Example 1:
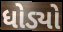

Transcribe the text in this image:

ધોડ્યો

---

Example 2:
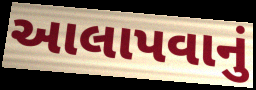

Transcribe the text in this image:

આલાપવાનું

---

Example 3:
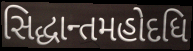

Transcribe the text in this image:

સિદ્ધાન્તમહોદધિ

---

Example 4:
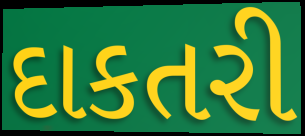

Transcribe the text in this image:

દાકતરી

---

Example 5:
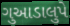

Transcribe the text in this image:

ગુઆડાલુપે